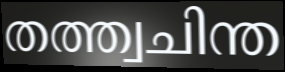
തത്ത്വചിന്ത